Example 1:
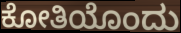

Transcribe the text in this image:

ಕೋತಿಯೊಂದು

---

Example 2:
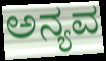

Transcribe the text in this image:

ಅನ್ಯವ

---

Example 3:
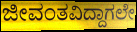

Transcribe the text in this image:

ಜೀವಂತವಿದ್ದಾಗಲೇ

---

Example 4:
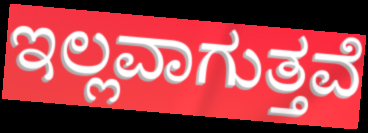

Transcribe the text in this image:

ಇಲ್ಲವಾಗುತ್ತವೆ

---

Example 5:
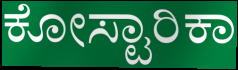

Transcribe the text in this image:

ಕೋಸ್ಟಾರಿಕಾ